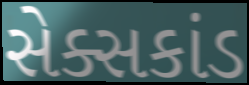
સેક્સકાંડ